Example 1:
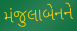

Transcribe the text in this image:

મંજુલાબેનને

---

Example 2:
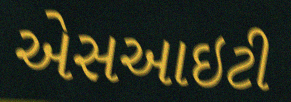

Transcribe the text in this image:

એસઆઇટી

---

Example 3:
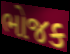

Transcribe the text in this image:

ભોજક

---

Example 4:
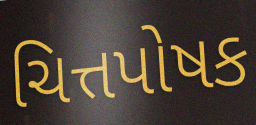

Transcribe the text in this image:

ચિત્તપોષક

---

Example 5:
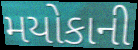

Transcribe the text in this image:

મયોકાની